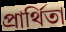
প্রার্থিতা